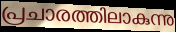
പ്രചാരത്തിലാകുന്നു